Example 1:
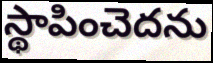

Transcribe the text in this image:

స్థాపించెదను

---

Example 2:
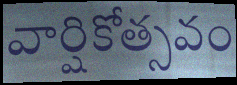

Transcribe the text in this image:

వార్షికోత్సవం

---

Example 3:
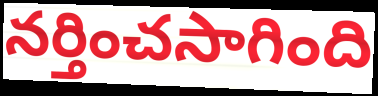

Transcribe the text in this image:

నర్తించసాగింది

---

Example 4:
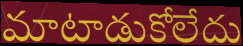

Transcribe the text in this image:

మాటాడుకోలేదు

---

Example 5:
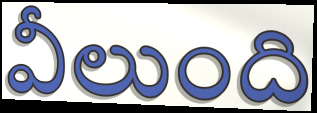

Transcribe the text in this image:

వీలుంది